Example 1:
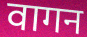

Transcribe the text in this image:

वागन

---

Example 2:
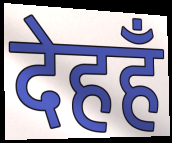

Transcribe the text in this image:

देहहँ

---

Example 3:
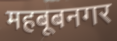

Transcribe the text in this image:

महबूबनगर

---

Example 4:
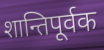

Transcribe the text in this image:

शान्तिपूर्वक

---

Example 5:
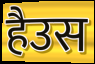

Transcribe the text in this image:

हैउस